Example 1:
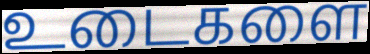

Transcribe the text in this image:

உடைகளை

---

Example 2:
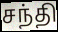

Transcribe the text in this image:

சந்தி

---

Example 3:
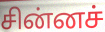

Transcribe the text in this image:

சின்னச்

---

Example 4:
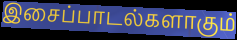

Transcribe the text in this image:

இசைப்பாடல்களாகும்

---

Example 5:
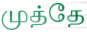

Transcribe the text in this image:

முத்தே